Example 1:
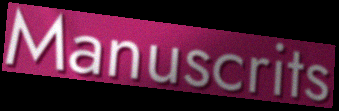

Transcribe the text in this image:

Manuscrits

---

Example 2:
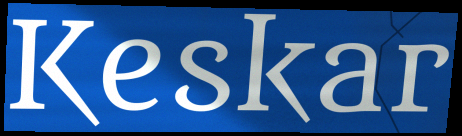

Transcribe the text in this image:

Keskar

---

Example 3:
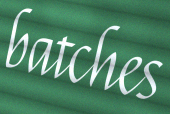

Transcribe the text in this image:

batches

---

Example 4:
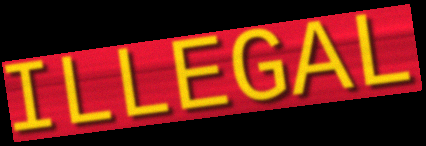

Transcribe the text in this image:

ILLEGAL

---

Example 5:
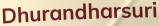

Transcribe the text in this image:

Dhurandharsuri